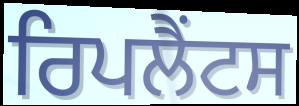
ਰਿਪਲੈਂਟਸ